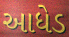
આધેડ